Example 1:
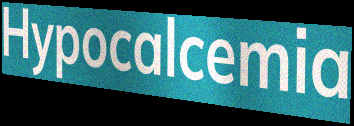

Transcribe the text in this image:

Hypocalcemia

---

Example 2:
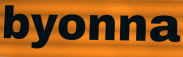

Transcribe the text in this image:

byonna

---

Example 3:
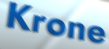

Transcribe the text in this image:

Krone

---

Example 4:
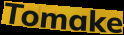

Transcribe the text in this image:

Tomake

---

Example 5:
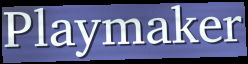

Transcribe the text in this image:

Playmaker